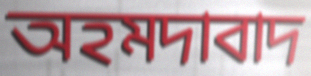
অহমদাবাদ